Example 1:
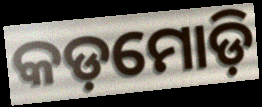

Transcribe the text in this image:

କଡ଼ମୋଡ଼ି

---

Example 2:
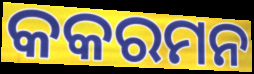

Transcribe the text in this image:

କକରମନ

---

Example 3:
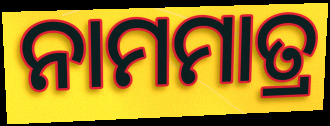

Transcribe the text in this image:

ନାମମାତ୍ର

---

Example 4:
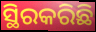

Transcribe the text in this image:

ସ୍ଥିରକରିଛି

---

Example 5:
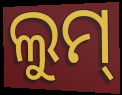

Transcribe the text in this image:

ଲୁମ୍